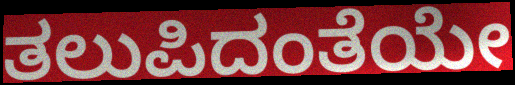
ತಲುಪಿದಂತೆಯೇ